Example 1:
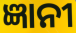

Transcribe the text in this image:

ଜ୍ଞାନୀ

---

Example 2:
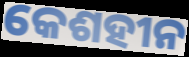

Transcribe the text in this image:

କେଶହୀନ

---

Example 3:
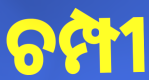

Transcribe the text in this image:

ଚମ୍ପୀ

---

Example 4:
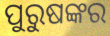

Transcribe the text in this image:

ପୁରୁଷଙ୍କର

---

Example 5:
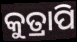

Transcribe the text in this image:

କୁତ୍ରାପି